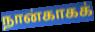
நான்காகக்